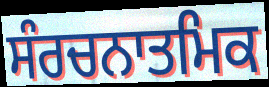
ਸੰਰਚਨਾਤਮਿਕ